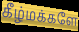
கீழ்மக்களே